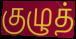
குழுத்